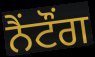
ਨੈਂਟੌਂਗ